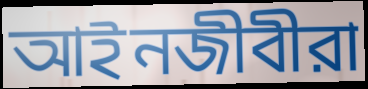
আইনজীবীরা